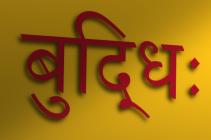
बुद्धिः